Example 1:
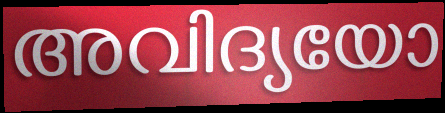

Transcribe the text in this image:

അവിദ്യയോ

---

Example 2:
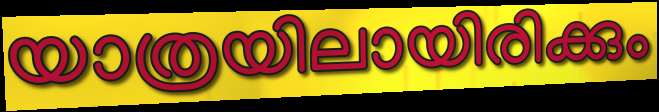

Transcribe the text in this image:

യാത്രയിലായിരിക്കും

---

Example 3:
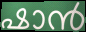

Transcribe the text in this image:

ഷാൻ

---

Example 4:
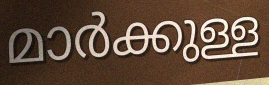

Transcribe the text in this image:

മാർക്കുള്ള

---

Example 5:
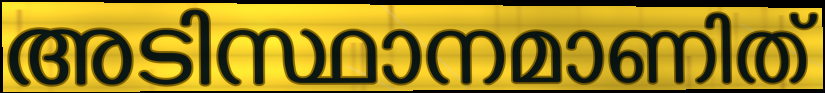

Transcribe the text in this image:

അടിസ്ഥാനമാണിത്